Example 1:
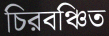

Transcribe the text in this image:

চিরবঞ্চিত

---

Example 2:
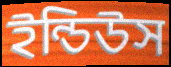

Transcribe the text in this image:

ইন্ডিউস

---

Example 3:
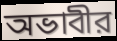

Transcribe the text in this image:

অভাবীর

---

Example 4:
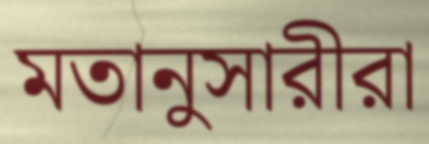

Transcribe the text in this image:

মতানুসারীরা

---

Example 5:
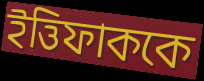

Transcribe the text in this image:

ইত্তিফাককে